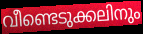
വീണ്ടെടുക്കലിനും